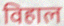
विहाल